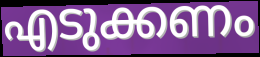
എടുക്കണം